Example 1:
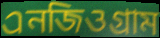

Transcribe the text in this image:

এনজিওগ্রাম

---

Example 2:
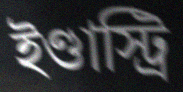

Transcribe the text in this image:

ইণ্ডাস্ট্রি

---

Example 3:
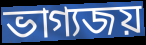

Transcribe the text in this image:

ভাগ্যজয়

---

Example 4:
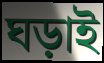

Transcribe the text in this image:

ঘড়াই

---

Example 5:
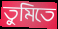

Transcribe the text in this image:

তুমিতে